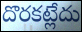
దొరకట్లేదు